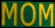
MOM